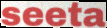
seeta